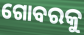
ଗୋବରକୁ